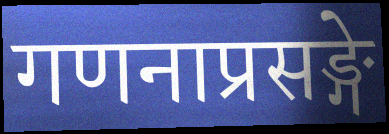
गणनाप्रसङ्गे